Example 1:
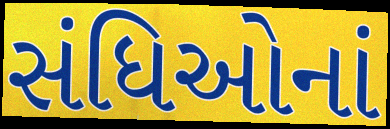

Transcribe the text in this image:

સંધિઓનાં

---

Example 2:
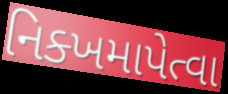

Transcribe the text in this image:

નિક્ખમાપેત્વા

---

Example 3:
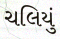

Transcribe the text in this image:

ચલિયું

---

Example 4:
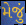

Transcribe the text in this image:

મેજું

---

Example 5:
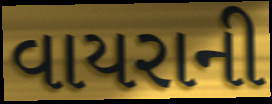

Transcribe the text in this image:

વાયરાની